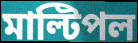
মাল্টিপল